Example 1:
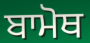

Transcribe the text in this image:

ਬਾਮੋਥ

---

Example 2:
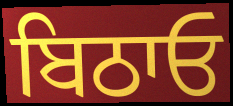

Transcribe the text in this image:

ਬਿਠਾਓ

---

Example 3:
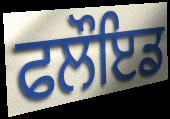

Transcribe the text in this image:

ਫਲੌਇਡ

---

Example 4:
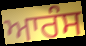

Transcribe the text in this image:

ਆਰੰਸ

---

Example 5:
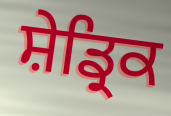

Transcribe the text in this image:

ਸ਼ੇਡ੍ਰਿਕ